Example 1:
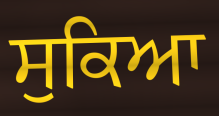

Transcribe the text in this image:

ਸੁਕਿਆ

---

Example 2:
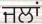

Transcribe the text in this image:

ਜਲਾਂ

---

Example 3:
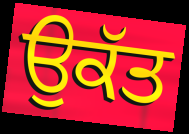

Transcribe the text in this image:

ਉਕੱਤ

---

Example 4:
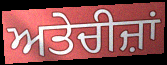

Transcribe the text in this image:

ਅਤੇਚੀਜ਼ਾਂ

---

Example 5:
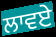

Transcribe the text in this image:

ਲਾਵਏ